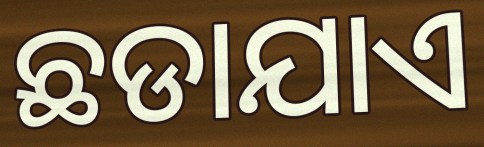
ଛଡାଯାଏ